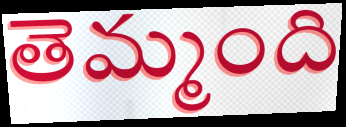
తెమ్మంది